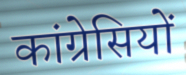
कांग्रेसियों